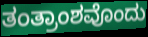
ತಂತ್ರಾಂಶವೊಂದು